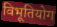
विभूतियोग